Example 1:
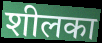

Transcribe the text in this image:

शीलका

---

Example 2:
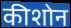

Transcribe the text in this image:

कीशोन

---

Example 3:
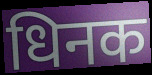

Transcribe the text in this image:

धिनक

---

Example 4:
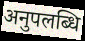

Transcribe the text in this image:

अनुपलब्धि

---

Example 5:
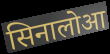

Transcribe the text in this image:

सिनालोआ